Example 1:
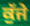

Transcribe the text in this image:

ਕੁੱਜੇ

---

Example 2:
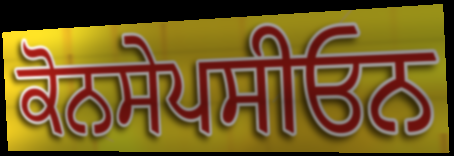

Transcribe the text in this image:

ਕੋਨਸੇਪਸੀਓਨ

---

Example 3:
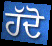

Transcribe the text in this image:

ਹੱਦੋ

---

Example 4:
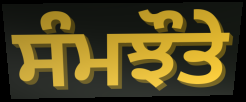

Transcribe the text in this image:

ਸੰਮਝੌਤੇ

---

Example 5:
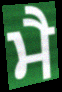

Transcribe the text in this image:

ਮੈ